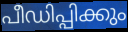
പീഡിപ്പിക്കും